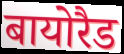
बायोरैड